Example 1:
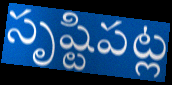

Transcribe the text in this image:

సృష్టిపట్ల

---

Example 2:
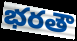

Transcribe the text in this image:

భరతౌ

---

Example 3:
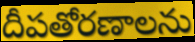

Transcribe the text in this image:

దీపతోరణాలను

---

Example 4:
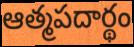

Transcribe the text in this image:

ఆత్మపదార్థం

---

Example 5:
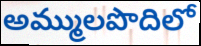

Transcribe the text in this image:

అమ్ములపొదిలో